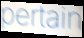
pertain